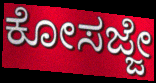
ಕೋಸಜ್ಜೇ